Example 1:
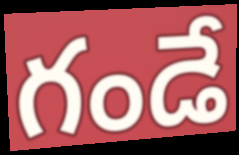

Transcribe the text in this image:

గండే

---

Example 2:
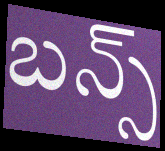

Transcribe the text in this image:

బన్స్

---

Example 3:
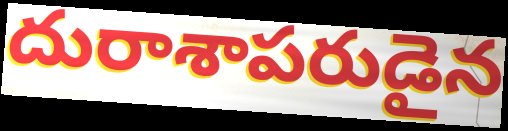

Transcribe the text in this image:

దురాశాపరుడైన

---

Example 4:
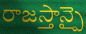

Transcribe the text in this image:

రాజస్తాన్పై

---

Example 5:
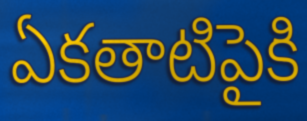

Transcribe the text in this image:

ఏకతాటిపైకి